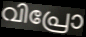
വിപ്രോ